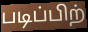
படிப்பிற்